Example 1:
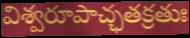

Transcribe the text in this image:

విశ్వరూపాచ్ఛతక్రతుః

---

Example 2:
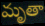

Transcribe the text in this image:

మృతా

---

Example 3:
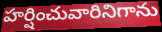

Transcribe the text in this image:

హర్షించువారినిగాను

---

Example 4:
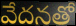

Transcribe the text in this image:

వేదనతో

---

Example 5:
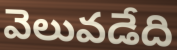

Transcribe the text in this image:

వెలువడేది